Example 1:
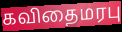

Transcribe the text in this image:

கவிதைமரபு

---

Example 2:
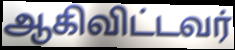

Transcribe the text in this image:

ஆகிவிட்டவர்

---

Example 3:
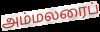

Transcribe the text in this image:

அம்மலரைப்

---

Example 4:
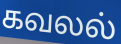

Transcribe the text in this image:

கவலல்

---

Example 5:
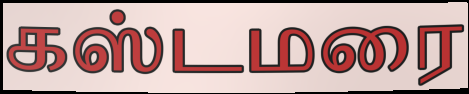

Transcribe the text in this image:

கஸ்டமரை